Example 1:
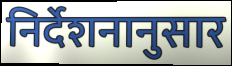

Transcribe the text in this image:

निर्देशनानुसार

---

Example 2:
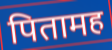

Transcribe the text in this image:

पितामह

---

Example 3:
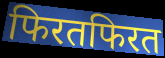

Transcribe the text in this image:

फिरतफिरत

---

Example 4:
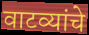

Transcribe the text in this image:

वाटव्यांचे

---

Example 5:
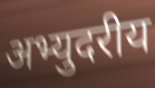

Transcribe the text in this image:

अभ्युदरीय